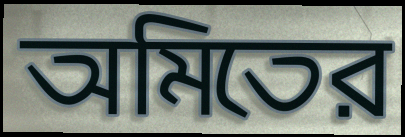
অমিতের